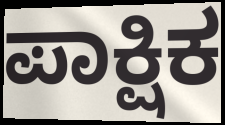
ಪಾಕ್ಷಿಕ